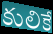
కులికే